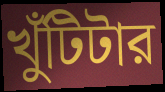
খুঁটিটার